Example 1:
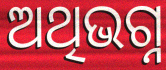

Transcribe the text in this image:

ଅଥିଭଗ୍ନ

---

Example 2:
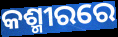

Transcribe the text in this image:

କଶ୍ମୀରରେ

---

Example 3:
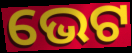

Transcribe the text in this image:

ଭେଟ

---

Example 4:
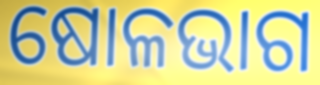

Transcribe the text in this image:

ଷୋଳଭାଗ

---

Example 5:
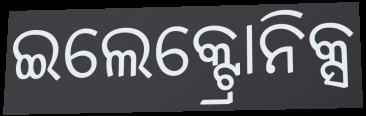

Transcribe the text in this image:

ଇଲେକ୍ଟ୍ରୋନିକ୍ସ